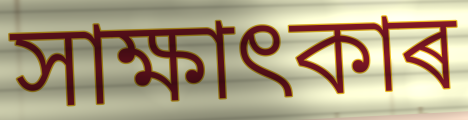
সাক্ষাৎকাৰ